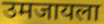
उमजायला